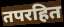
तपरहित